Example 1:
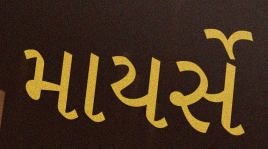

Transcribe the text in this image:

માયર્સે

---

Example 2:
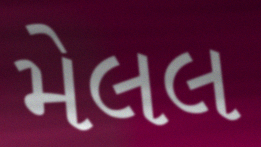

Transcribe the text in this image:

મેલલ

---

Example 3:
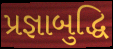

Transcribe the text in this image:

પ્રજ્ઞાબુદ્ધિ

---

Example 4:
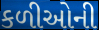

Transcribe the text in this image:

કળીઓની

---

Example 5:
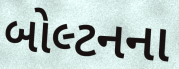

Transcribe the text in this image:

બોલ્ટનના